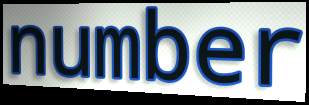
number